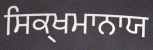
ਸਿਕ੍ਖਮਾਨਾਯ